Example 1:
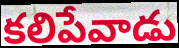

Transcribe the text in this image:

కలిపేవాడు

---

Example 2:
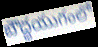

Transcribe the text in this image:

బౌద్ధయుగంలో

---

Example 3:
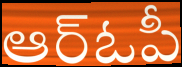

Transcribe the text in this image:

ఆర్ఓపీ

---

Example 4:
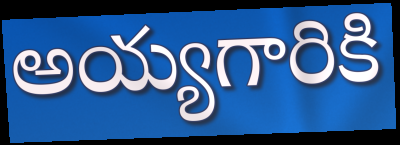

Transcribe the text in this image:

అయ్యగారికి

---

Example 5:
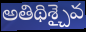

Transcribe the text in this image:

అతిథిశ్చైవ